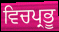
ਵਿਚਪ੍ਰਭੂ